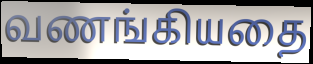
வணங்கியதை